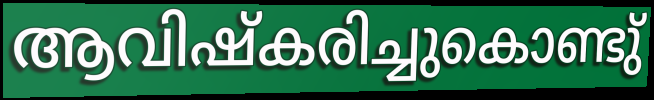
ആവിഷ്കരിച്ചുകൊണ്ടു്